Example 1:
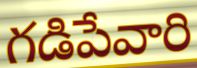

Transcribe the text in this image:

గడిపేవారి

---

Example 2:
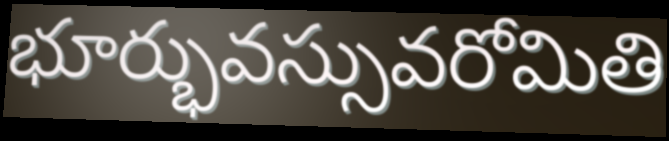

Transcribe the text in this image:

భూర్భువస్సువరోమితి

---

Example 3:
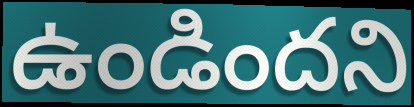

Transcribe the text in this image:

ఉండిందని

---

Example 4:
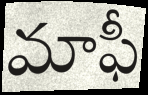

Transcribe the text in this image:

మాఫీ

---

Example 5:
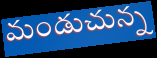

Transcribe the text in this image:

మండుచున్న